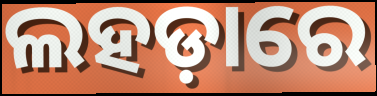
ଲହଡ଼ାରେ